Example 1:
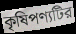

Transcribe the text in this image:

কৃষিপণ্যটির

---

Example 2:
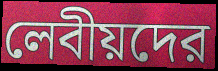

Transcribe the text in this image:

লেবীয়দের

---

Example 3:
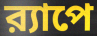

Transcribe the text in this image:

র‍্যাপে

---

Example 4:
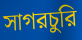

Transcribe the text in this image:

সাগরচুরি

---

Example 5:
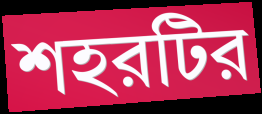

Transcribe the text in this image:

শহরটির